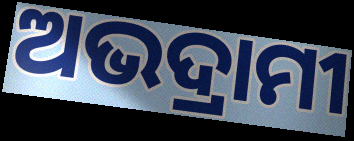
ଅଭଦ୍ରାମୀ